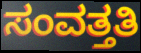
ಸಂವತ್ತತಿ